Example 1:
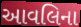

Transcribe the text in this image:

આવલિના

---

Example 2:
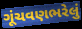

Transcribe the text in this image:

ગૂંચવણભરેલું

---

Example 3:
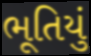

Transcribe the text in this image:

ભૂતિયું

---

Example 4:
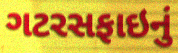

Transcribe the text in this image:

ગટરસફાઇનું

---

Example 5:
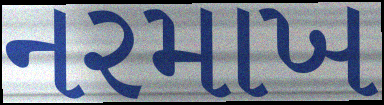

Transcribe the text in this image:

નરમાખ